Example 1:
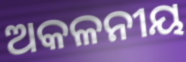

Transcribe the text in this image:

ଅକଳନୀୟ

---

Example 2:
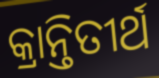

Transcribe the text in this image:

କ୍ରାନ୍ତିତୀର୍ଥ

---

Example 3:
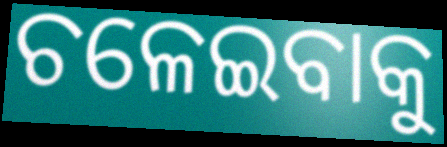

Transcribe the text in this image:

ଚଳେଇବାକୁ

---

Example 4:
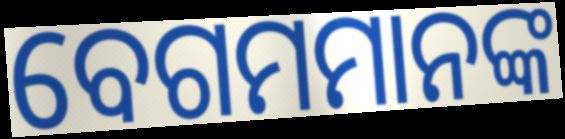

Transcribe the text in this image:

ବେଗମମାନଙ୍କ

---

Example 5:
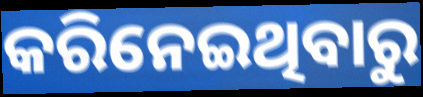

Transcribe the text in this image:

କରିନେଇଥିବାରୁ